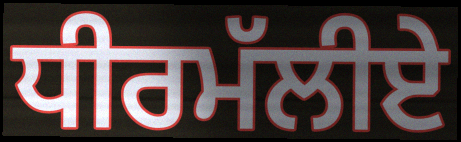
ਧੀਰਮੱਲੀਏ